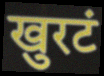
खुरटं